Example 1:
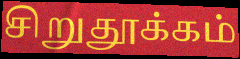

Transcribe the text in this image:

சிறுதூக்கம்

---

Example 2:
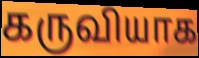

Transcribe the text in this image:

கருவியாக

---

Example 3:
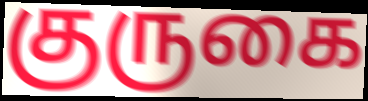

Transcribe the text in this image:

குருகை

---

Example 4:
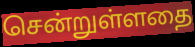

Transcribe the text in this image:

சென்றுள்ளதை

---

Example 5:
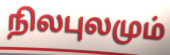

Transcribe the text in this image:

நிலபுலமும்